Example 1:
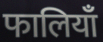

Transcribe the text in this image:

फालियाँ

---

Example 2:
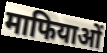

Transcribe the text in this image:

माफियाओं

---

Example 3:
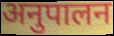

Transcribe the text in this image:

अनुपालन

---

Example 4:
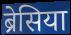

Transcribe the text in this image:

ब्रेसिया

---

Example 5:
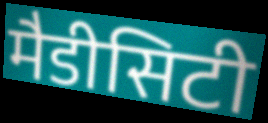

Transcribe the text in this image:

मैडीसिटी